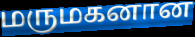
மருமகனான